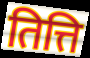
तित्ति